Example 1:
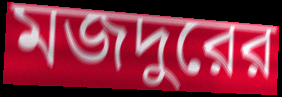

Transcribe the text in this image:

মজদুরের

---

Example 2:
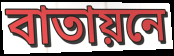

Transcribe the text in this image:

বাতায়নে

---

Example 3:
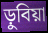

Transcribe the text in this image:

ড়ুবিয়া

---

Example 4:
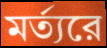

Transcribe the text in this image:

মর্ত্যরে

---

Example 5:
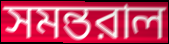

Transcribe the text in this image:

সমন্তরাল